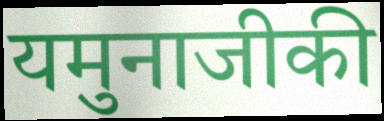
यमुनाजीकी